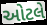
ઓટલે